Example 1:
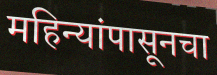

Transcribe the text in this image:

महिन्यांपासूनचा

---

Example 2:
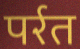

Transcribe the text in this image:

पर्रत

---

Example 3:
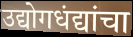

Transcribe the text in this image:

उद्योगधंद्यांचा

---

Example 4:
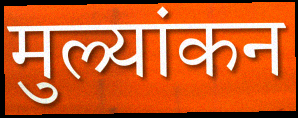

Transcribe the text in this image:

मुल्यांकन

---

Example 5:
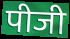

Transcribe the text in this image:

पीजी